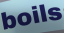
boils